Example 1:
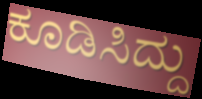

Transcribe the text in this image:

ಕೂಡಿಸಿದ್ದು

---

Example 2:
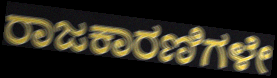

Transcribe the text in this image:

ರಾಜಕಾರಣಿಗಳೇ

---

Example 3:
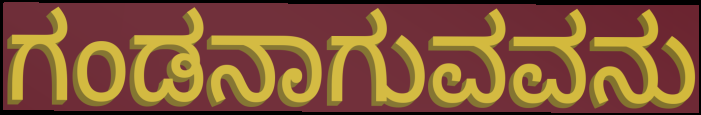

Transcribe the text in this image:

ಗಂಡನಾಗುವವನು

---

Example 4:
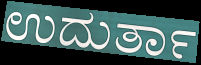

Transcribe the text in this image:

ಉದುರ್ತಾ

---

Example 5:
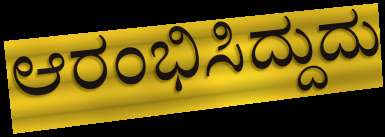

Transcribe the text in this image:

ಆರಂಭಿಸಿದ್ದುದು